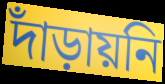
দাঁড়ায়নি